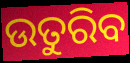
ଉତୁରିବ